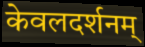
केवलदर्शनम्